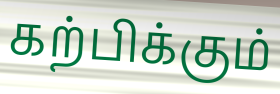
கற்பிக்கும்